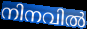
നിനവിൽ